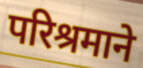
परिश्रमाने